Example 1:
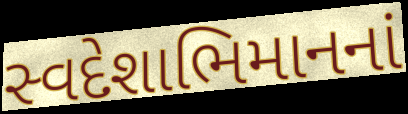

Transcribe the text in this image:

સ્વદેશાભિમાનનાં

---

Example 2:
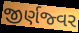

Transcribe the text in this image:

જીર્ણજ્વર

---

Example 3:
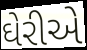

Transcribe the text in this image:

ઘેરીએ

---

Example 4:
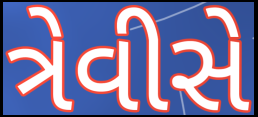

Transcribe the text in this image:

ત્રેવીસે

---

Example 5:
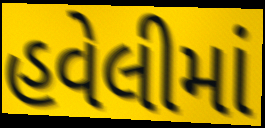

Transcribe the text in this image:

હવેલીમાં